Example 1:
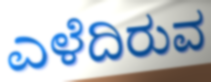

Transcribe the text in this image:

ಎಳೆದಿರುವ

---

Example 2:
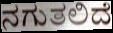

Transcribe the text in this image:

ನಗುತಲಿದೆ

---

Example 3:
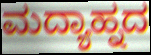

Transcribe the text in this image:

ಮದ್ಯಾಹ್ನದ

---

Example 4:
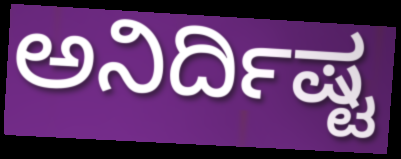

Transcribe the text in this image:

ಅನಿರ್ದಿಷ್ಟ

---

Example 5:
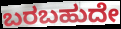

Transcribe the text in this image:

ಬರಬಹುದೇ